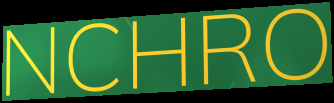
NCHRO